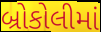
બ્રોકોલીમાં